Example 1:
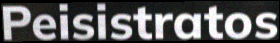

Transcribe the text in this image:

Peisistratos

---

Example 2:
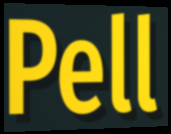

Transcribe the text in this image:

Pell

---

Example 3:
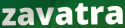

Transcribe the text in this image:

zavatra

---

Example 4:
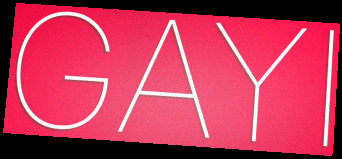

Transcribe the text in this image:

GAYI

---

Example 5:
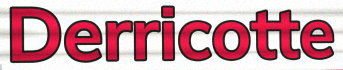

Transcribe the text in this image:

Derricotte